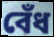
বেঁধ